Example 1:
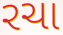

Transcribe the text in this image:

રચા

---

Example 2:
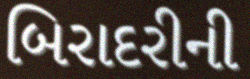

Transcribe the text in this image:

બિરાદરીની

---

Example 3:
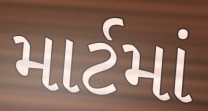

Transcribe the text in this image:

માર્ટમાં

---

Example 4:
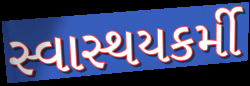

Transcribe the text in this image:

સ્વાસ્થયકર્મી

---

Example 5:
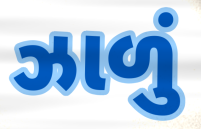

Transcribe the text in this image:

ઝાળું